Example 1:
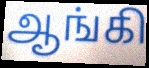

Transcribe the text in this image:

ஆங்கி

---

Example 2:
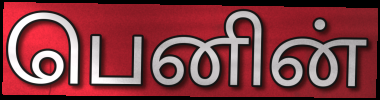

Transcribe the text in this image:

பெனின்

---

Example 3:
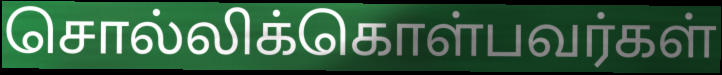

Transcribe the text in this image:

சொல்லிக்கொள்பவர்கள்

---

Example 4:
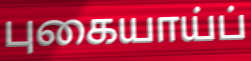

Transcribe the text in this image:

புகையாய்ப்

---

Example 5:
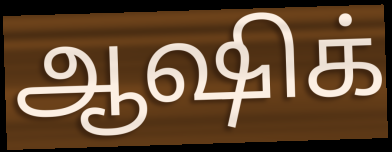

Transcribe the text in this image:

ஆஷிக்